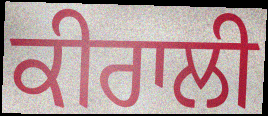
ਕੀਰਾਲੀ